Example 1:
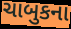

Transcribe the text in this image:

ચાબુકના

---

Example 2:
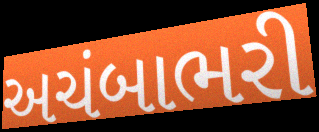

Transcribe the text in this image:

અચંબાભરી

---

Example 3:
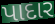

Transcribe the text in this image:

પાદાર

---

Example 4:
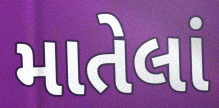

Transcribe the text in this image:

માતેલાં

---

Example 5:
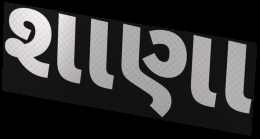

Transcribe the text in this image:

શાણા